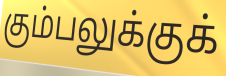
கும்பலுக்குக்